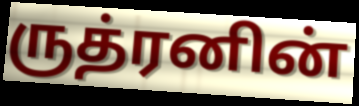
ருத்ரனின்